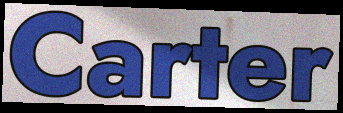
Carter